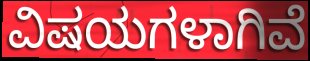
ವಿಷಯಗಳಾಗಿವೆ